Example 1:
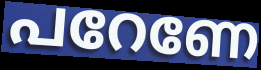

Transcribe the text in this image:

പറേണേ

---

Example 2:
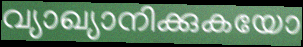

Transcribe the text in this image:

വ്യാഖ്യാനിക്കുകയോ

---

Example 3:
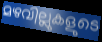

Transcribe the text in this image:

മഴവില്ലുകളുടെ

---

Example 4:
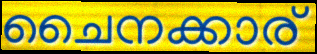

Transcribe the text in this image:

ചൈനക്കാര്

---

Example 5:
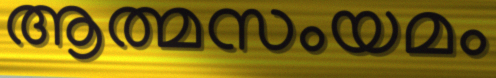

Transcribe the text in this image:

ആത്മസംയമം